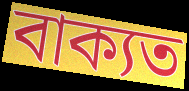
বাক্যত